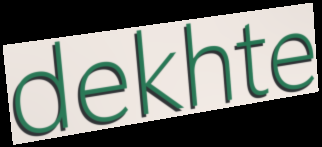
dekhte